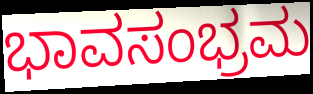
ಭಾವಸಂಭ್ರಮ